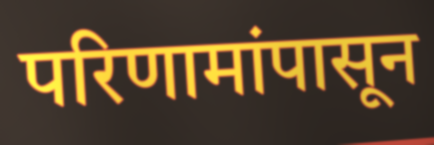
परिणामांपासून